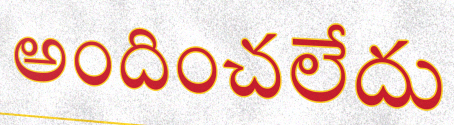
అందించలేదు